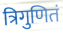
त्रिगुणितं